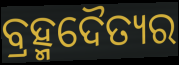
ବ୍ରହ୍ମଦୈତ୍ୟର